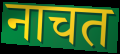
नाचत